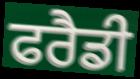
ਫਰੈਡੀ